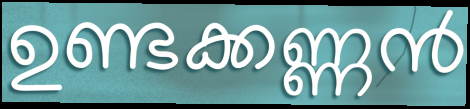
ഉണ്ടക്കണ്ണൻ